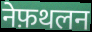
नेफ़थलन